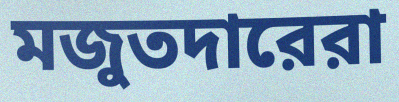
মজুতদারেরা